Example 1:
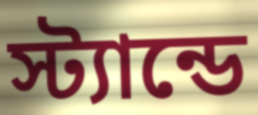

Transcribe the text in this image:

স্ট্যান্ডে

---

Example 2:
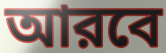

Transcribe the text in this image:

আরবে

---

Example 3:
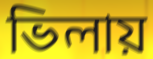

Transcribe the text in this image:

ভিলায়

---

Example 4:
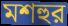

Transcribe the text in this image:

মশহুর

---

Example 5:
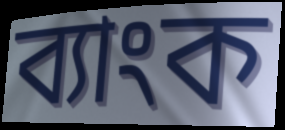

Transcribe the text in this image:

ব্যাংক